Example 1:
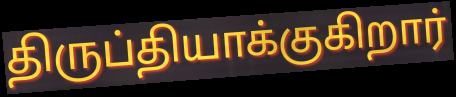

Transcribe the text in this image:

திருப்தியாக்குகிறார்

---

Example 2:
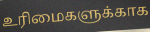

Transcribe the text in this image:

உரிமைகளுக்காக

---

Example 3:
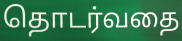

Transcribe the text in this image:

தொடர்வதை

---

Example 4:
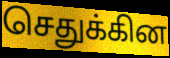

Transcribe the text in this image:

செதுக்கின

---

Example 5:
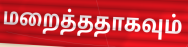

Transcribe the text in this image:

மறைத்ததாகவும்